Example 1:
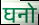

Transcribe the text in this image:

घनो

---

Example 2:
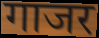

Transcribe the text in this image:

गाजर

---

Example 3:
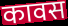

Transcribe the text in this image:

कावस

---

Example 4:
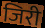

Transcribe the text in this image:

जिरी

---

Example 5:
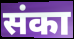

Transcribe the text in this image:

संका